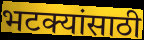
भटक्यांसाठी